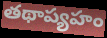
తథాప్యహం